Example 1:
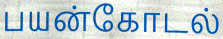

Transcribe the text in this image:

பயன்கோடல்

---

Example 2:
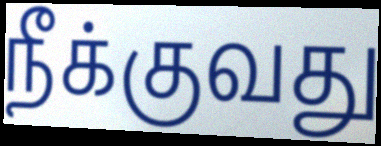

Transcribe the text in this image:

நீக்குவது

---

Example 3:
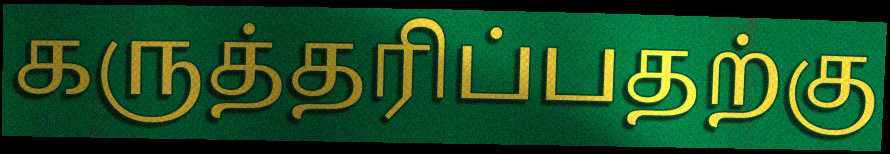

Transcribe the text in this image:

கருத்தரிப்பதற்கு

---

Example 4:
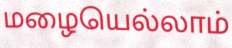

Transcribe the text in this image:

மழையெல்லாம்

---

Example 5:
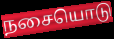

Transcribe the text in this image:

நசையொடு